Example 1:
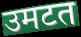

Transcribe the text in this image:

उमटत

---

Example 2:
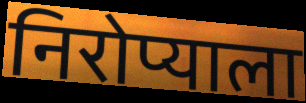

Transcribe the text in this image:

निरोप्याला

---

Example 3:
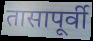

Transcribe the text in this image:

तासापूर्वी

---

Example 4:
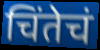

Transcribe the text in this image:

चिंतेचं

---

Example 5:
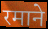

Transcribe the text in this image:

रमाने